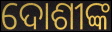
ଦୋଶୀଙ୍କ